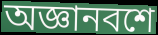
অজ্ঞানবশে